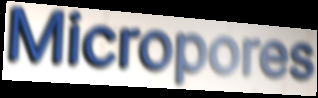
Micropores